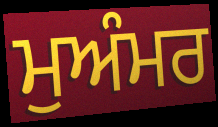
ਮੁਅੰਮਰ